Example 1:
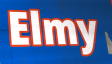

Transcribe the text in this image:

Elmy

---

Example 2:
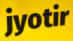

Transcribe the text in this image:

jyotir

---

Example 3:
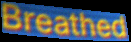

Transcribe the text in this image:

Breathed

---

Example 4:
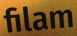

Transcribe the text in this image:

filam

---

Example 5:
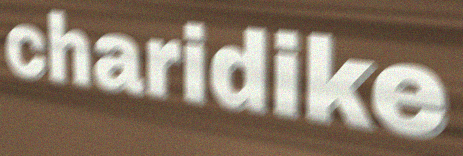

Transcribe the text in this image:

charidike